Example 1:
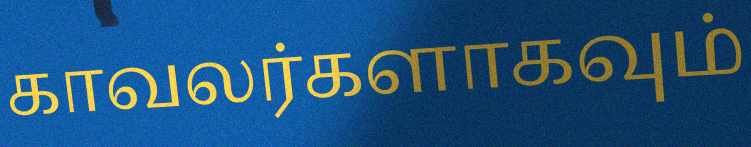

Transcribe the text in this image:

காவலர்களாகவும்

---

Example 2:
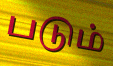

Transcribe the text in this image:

படும்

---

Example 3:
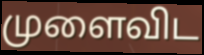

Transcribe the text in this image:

முளைவிட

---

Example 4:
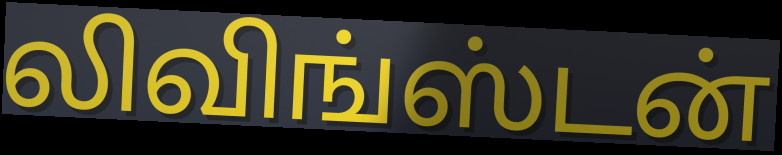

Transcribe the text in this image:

லிவிங்ஸ்டன்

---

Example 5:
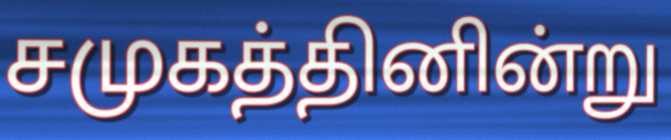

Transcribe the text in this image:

சமுகத்தினின்று